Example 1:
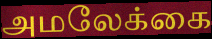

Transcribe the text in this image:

அமலேக்கை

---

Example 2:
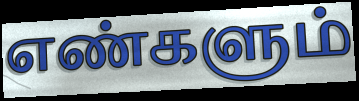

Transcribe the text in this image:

எண்களும்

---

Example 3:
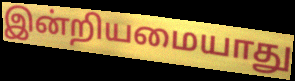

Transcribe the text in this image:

இன்றியமையாது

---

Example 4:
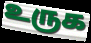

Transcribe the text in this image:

உருக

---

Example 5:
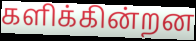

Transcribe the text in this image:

களிக்கின்றன